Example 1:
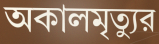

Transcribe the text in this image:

অকালমৃত্যুর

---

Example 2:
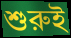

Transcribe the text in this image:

শুরুই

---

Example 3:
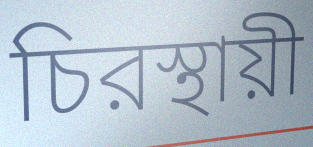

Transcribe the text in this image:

চিরস্থায়ী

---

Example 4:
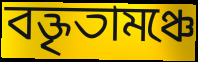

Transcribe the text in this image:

বক্তৃতামঞ্চে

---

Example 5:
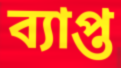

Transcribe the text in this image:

ব্যাপ্ত